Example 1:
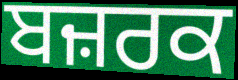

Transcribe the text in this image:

ਬਜ਼ਰਕ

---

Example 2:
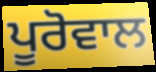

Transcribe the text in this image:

ਪੂਰੋਵਾਲ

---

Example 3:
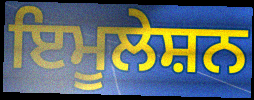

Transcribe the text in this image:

ਇਮੂਲੇਸ਼ਨ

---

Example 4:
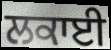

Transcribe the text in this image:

ਲਕਾਈ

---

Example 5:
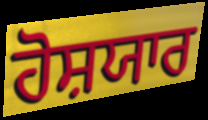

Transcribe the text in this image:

ਹੋਸ਼ਯਾਰ